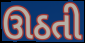
ઊઠતી